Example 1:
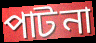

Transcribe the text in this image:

পাটনা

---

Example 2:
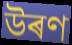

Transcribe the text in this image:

উৰণ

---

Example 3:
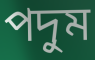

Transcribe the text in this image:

পদুম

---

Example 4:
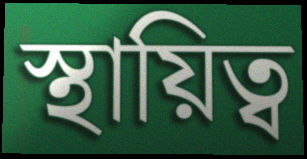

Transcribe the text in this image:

স্থায়িত্ব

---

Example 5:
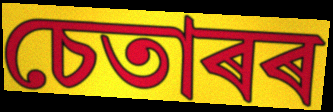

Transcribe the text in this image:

চেতাৰৰ